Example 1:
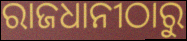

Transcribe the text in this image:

ରାଜଧାନୀଠାରୁ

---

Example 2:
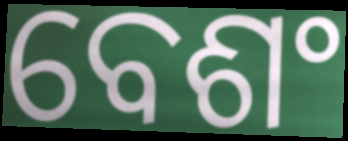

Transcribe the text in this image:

ବେଶଂ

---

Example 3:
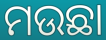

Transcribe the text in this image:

ମଉଛା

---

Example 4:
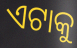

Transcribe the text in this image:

ଏଟାକୁ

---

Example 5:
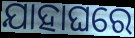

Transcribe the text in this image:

ଯାହାଘରେ